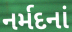
નર્મદનાં